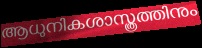
ആധുനികശാസ്ത്രത്തിനും